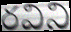
రవిని